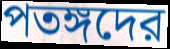
পতঙ্গদের